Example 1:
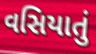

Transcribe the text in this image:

વસિયાતું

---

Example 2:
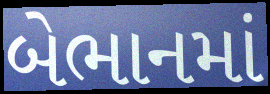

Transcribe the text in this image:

બેભાનમાં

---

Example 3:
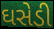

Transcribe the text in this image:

ઘસેડી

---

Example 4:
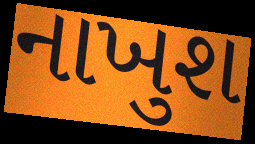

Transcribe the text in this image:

નાખુશ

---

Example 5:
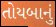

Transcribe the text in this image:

તોયબાનું